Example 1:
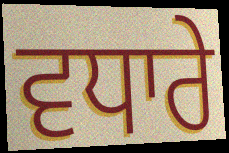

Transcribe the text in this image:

ਵਧਾਰੇ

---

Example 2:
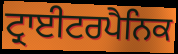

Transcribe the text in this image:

ਟ੍ਰਾਈਟਰਪੈਨਿਕ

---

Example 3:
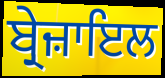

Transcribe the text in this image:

ਬ੍ਰੇਜ਼ਾਇਲ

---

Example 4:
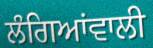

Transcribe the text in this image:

ਲੰਗਿਆਂਵਾਲੀ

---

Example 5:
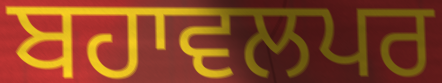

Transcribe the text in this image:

ਬਹਾਵਲਪਰ